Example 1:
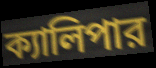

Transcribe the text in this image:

ক্যালিপার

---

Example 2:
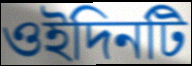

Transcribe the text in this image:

ওইদিনটি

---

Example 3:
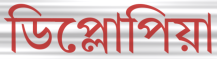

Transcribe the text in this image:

ডিপ্লোপিয়া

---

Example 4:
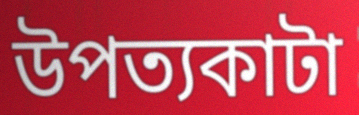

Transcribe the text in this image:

উপত্যকাটা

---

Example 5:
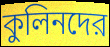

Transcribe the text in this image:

কুলিনদের